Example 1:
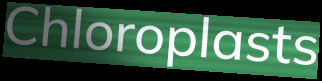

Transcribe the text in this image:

Chloroplasts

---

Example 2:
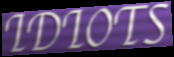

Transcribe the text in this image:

IDIOTS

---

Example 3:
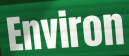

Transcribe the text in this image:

Environ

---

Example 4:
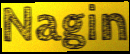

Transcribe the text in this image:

Nagin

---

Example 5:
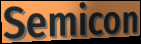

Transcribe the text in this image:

Semicon